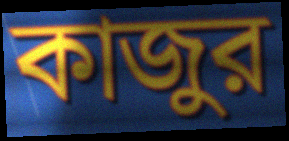
কাজুর